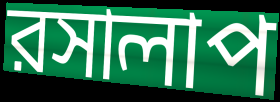
রসালাপ